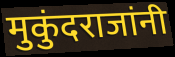
मुकुंदराजांनी